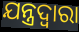
ଯନ୍ତ୍ରଦ୍ବାରା